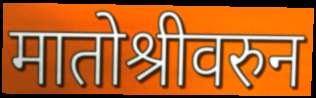
मातोश्रीवरुन